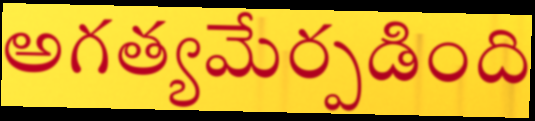
అగత్యమేర్పడింది